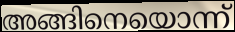
അങ്ങിനെയൊന്ന്